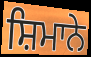
ਸ਼ਿਮਾਨੇ